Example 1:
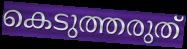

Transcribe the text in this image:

കെടുത്തരുത്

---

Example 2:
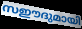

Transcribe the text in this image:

സഈദുമായി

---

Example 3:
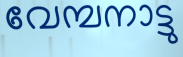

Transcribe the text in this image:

വേമ്പനാട്ടു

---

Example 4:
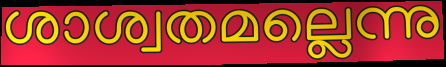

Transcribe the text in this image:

ശാശ്വതമല്ലെന്നു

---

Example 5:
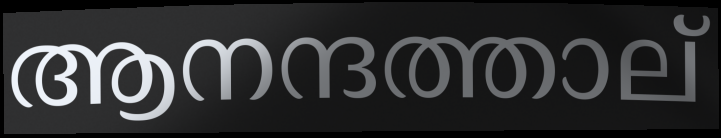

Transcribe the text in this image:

ആനന്ദത്താല്